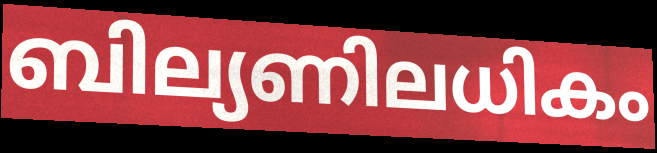
ബില്യണിലധികം